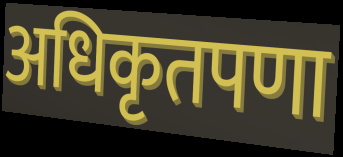
अधिकृतपणा